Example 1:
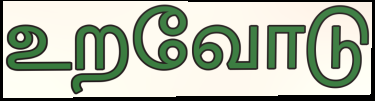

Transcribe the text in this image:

உறவோடு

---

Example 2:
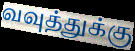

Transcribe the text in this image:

வவுத்துக்கு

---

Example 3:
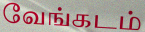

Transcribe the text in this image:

வேங்கடம்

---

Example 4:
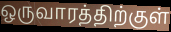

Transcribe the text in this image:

ஒருவாரத்திற்குள்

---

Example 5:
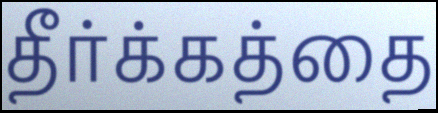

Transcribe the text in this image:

தீர்க்கத்தை